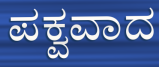
ಪಕ್ವವಾದ